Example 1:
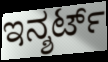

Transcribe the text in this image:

ಇನ್ಶರ್ಟ್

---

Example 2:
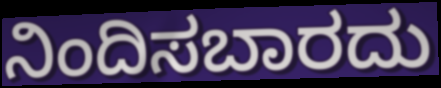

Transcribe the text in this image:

ನಿಂದಿಸಬಾರದು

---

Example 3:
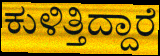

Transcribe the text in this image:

ಕುಳಿತ್ತಿದ್ದಾರೆ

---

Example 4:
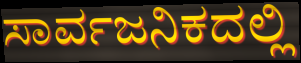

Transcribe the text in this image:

ಸಾರ್ವಜನಿಕದಲ್ಲಿ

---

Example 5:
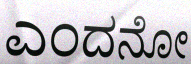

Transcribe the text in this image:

ಎಂದನೋ